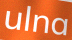
ulna